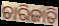
ଚାରିଜାତି